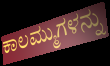
ಕಾಲಮ್ಮುಗಳನ್ನು